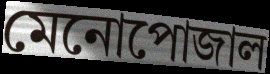
মেনোপোজাল